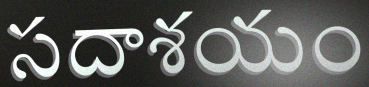
సదాశయం